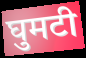
घुमटी